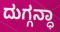
ದುಗ್ಗನ್ಧಾ